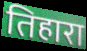
तिहारा